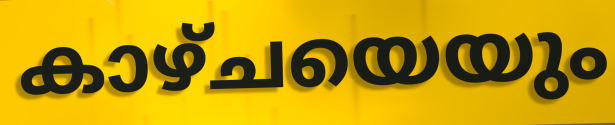
കാഴ്ചയെയും